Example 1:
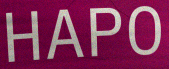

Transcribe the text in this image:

HAPO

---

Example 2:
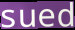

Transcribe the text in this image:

sued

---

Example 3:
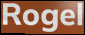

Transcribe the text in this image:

Rogel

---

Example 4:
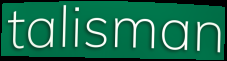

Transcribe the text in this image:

talisman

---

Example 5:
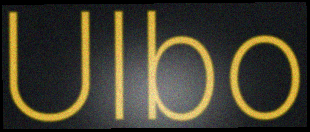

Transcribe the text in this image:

Ulbo